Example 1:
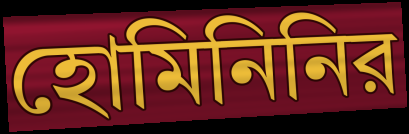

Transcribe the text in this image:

হোমিনিনির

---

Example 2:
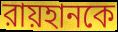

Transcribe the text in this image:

রায়হানকে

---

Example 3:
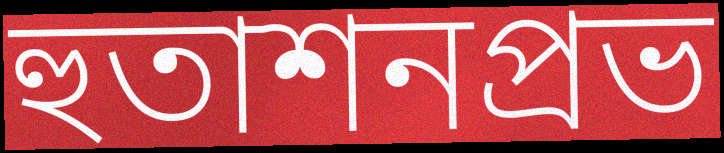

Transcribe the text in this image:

হুতাশনপ্রভ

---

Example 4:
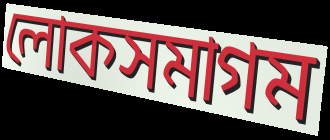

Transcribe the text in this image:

লোকসমাগম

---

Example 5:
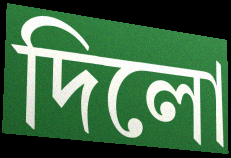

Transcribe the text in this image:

দিলো